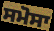
ਸਮੋਸਾ